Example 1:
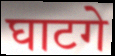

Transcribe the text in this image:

घाटगे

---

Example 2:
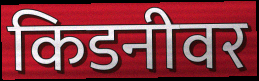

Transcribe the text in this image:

किडनीवर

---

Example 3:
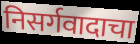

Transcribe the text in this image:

निसर्गवादाचा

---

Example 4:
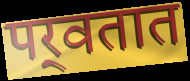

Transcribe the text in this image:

पर्वतात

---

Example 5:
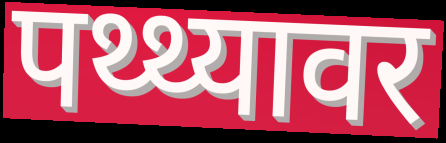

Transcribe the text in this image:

पथ्थ्यावर